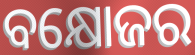
ବକ୍ଷୋଜର